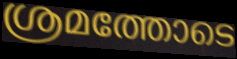
ശ്രമത്തോടെ